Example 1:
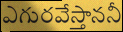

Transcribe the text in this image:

ఎగురవేస్తాననీ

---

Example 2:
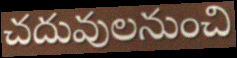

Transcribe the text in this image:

చదువులనుంచి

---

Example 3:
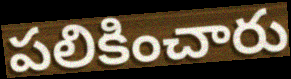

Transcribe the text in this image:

పలికించారు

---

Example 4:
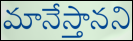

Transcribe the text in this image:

మానేస్తానని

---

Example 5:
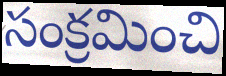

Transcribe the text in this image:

సంక్రమించి